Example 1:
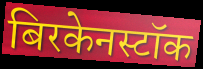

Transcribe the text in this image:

बिरकेनस्टॉक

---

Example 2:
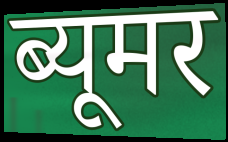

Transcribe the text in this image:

ब्यूमर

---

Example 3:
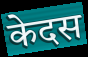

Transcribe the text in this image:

केदस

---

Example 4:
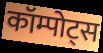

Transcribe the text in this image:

कॉम्पोट्स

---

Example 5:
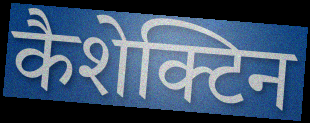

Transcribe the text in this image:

कैशेक्टिन